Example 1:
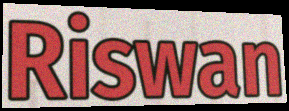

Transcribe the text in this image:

Riswan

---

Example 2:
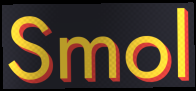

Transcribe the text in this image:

Smol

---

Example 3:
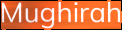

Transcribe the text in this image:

Mughirah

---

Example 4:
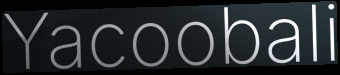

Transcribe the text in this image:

Yacoobali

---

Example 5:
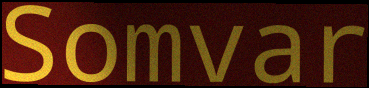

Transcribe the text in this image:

Somvar